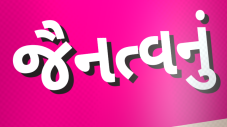
જૈનત્વનું